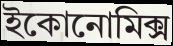
ইকোনোমিক্স